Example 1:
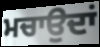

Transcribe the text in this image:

ਮਚਾਉਦਾਂ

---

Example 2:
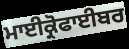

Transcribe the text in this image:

ਮਾਈਕ੍ਰੋਫਾਈਬਰ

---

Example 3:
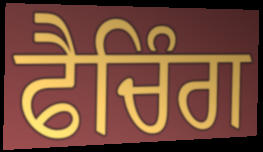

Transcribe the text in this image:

ਫੈਚਿੰਗ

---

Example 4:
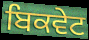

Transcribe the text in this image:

ਬਿਕਵੇਟ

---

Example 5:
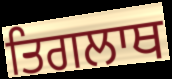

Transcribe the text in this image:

ਤਿਗਲਾਥ